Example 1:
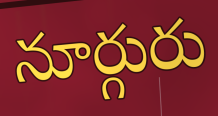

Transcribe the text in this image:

నూర్గురు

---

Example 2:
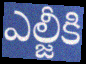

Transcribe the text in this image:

ఎల్జీకి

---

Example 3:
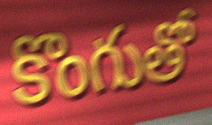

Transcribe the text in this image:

కొంగుతో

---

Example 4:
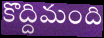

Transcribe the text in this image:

కొద్దిమంది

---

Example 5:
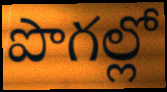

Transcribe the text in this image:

పొగల్లో